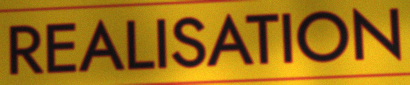
REALISATION